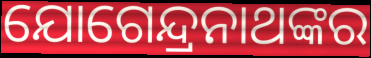
ଯୋଗେନ୍ଦ୍ରନାଥଙ୍କର